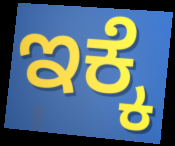
ಇಕ್ಕೆ